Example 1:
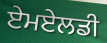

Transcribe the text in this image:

ਏਮਏਲਡੀ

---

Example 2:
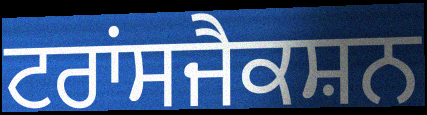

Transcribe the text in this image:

ਟਰਾਂਸਜੈਕਸ਼ਨ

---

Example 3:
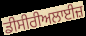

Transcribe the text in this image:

ਡੀਸੀਰੀਅਲਾਈਜ਼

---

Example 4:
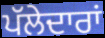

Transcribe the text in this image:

ਪੱਲੇਦਾਰਾਂ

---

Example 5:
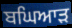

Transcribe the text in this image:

ਬਘਿਆੜ